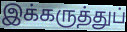
இக்கருத்துப்